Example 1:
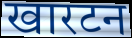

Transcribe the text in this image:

खारटन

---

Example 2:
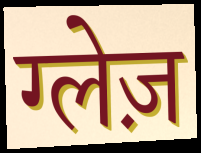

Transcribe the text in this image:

ग्लेज़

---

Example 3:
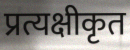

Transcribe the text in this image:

प्रत्यक्षीकृत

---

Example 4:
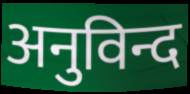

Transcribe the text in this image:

अनुविन्द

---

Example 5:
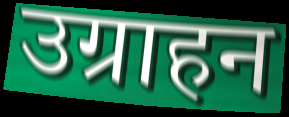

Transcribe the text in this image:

उग्राहन